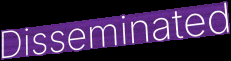
Disseminated